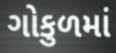
ગોકુળમાં